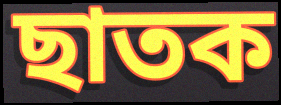
ছাতক